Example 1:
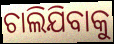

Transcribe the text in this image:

ଚାଲିଯିବାକୁ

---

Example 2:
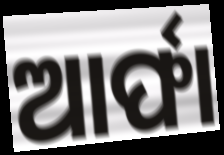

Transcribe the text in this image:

ଆର୍ଫା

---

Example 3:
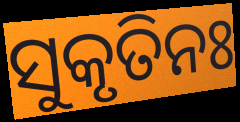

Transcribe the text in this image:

ସୁକୃତିନଃ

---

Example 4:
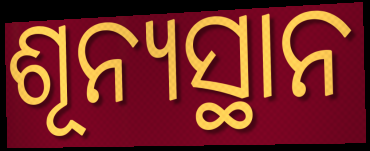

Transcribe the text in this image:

ଶୂନ୍ୟସ୍ଥାନ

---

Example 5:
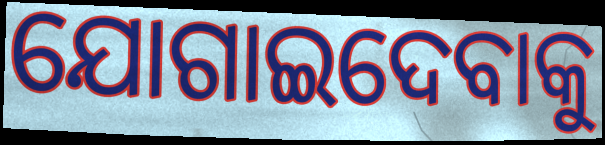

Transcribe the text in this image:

ଯୋଗାଇଦେବାକୁ